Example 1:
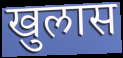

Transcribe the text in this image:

खुलास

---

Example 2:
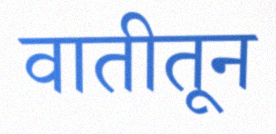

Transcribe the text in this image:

वातीतून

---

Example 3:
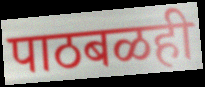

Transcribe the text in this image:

पाठबळही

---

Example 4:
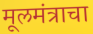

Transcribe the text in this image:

मूलमंत्राचा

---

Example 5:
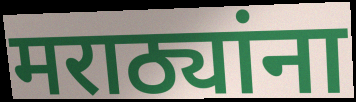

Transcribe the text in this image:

मराठ्यांना